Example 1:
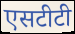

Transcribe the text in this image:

एसटीटी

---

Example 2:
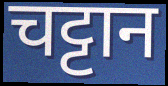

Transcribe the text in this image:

चट्टान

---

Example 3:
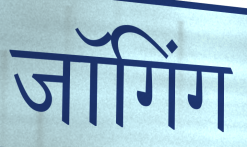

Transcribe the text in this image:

जॉगिंग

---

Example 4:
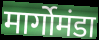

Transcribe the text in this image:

मार्गोमंडा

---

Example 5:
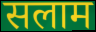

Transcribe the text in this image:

सलाम